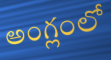
అంగ్లంలో